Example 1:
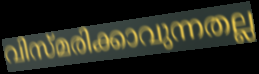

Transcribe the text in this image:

വിസ്മരിക്കാവുന്നതല്ല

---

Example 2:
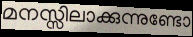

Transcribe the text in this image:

മനസ്സിലാക്കുന്നുണ്ടോ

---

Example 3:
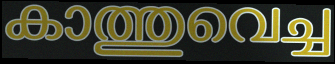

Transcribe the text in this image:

കാത്തുവെച്ച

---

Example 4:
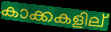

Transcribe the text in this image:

കാക്കകളില്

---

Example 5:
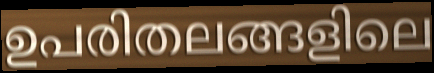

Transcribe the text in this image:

ഉപരിതലങ്ങളിലെ